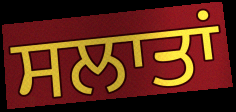
ਸਲਾਤਾਂ